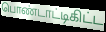
பொண்டாட்டிகிட்ட